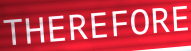
THEREFORE